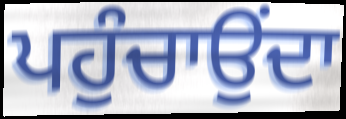
ਪਹੁੰਚਾਉਂਦਾ